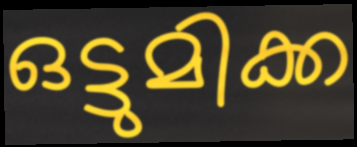
ഒട്ടുമിക്ക